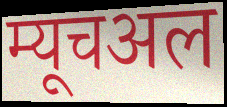
म्यूचअल